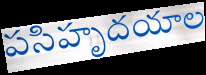
పసిహృదయాల